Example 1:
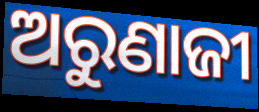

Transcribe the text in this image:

ଅରୁଣାଜୀ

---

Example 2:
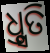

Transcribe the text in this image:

ଧ୍ତ୍ସତି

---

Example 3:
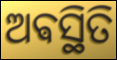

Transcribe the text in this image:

ଅଵସ୍ଥିତି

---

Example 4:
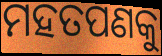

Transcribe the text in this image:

ମହତପଣକୁ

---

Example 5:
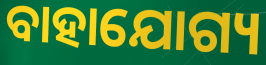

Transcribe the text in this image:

ବାହାଯୋଗ୍ୟ